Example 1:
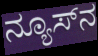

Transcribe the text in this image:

ನ್ಯೂಸ್‌ನ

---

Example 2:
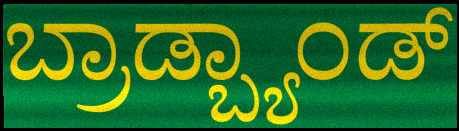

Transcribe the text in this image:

ಬ್ರಾಡ್ಬ್ಯಾಂಡ್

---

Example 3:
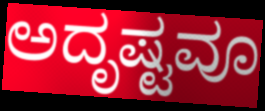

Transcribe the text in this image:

ಅದೃಷ್ಟವೂ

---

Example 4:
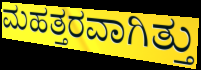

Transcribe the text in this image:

ಮಹತ್ತರವಾಗಿತ್ತು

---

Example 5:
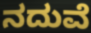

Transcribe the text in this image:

ನದುವೆ